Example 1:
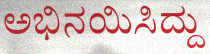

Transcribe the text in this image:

ಅಭಿನಯಿಸಿದ್ದು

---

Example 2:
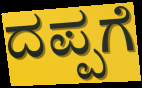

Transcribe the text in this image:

ದಪ್ಪಗೆ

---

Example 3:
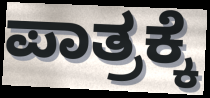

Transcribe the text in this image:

ಪಾತ್ರಕ್ಕೆ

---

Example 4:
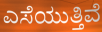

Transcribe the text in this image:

ಎಸೆಯುತ್ತಿವೆ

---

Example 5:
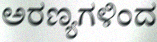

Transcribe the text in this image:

ಅರಣ್ಯಗಳಿಂದ